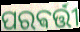
ପରଵର୍ତ୍ତୀ